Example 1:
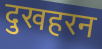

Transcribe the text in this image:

दुखहरन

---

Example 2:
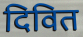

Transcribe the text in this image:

दिवित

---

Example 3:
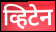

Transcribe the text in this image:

व्हिटेन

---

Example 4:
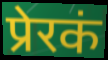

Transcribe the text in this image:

प्रेरकं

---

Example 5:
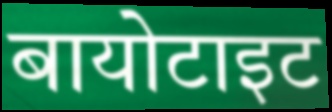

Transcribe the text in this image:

बायोटाइट